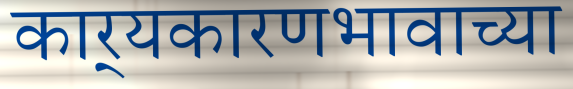
कार्यकारणभावाच्या